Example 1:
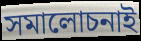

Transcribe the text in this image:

সমালোচনাই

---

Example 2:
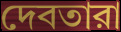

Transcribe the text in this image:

দেবতারা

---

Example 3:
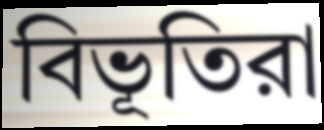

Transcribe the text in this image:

বিভূতিরা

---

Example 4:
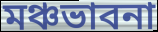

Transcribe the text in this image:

মঞ্চভাবনা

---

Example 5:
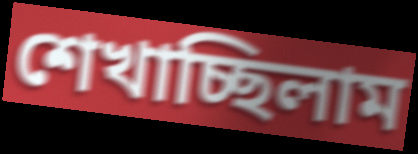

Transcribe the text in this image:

শেখাচ্ছিলাম